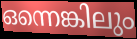
ഒന്നെങ്കിലും